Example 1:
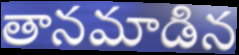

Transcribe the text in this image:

తానమాడిన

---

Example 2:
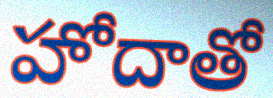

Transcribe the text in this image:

హోదాతో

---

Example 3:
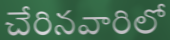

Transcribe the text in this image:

చేరినవారిలో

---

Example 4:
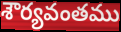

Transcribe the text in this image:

శౌర్యవంతము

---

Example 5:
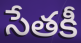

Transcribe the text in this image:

సేతకీ